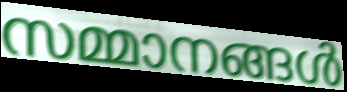
സമ്മാനങ്ങൾ